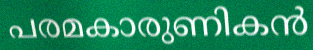
പരമകാരുണികൻ